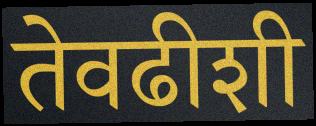
तेवढीशी